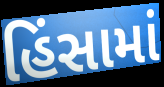
હિંસામાં